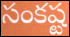
సంకష్ట